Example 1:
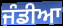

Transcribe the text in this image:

ਜੰਡੀਆ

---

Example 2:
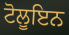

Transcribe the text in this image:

ਟੋਲੂਇਨ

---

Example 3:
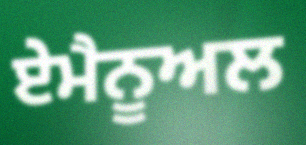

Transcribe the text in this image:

ਏਮੈਨੂਅਲ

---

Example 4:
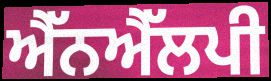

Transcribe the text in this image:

ਐੱਨਐੱਲਪੀ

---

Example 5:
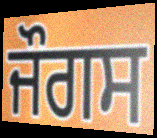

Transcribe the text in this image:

ਜੌਗਸ